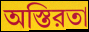
অস্তিরতা